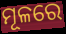
ମୂଳରେ